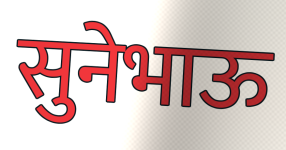
सुनेभाऊ